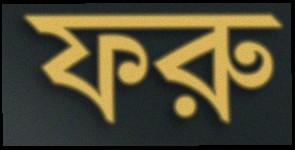
ফরু